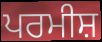
ਪਰਮੀਸ਼